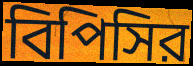
বিপিসির